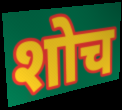
शोच